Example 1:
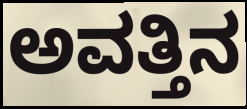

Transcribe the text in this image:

ಅವತ್ತಿನ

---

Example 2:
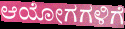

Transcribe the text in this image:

ಆಯೋಗಗಳಿಗೆ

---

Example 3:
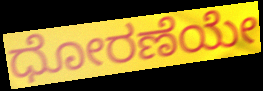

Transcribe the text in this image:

ಧೋರಣೆಯೇ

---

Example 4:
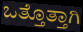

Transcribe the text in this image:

ಒತ್ತೊತ್ತಾಗಿ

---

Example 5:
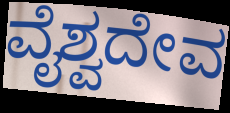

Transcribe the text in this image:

ವೈಶ್ವದೇವ